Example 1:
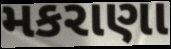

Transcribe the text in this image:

મકરાણા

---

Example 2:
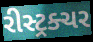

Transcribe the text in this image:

રીસ્ટ્રક્ચર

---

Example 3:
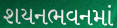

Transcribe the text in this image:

શયનભવનમાં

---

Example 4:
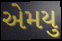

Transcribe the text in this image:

એમયુ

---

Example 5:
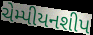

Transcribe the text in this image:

ચેમ્પીયનશીપ